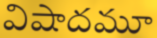
విషాదమూ